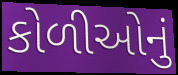
કોળીઓનું